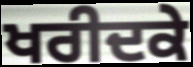
ਖਰੀਦਕੇ